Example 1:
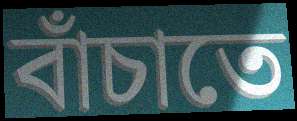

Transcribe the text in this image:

বাঁচাতে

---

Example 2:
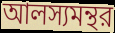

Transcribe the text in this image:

আলস্যমন্থর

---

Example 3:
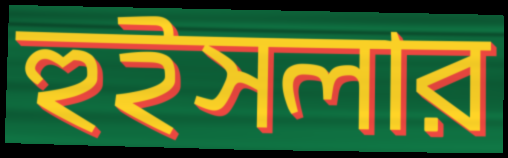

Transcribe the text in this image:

হুইসলার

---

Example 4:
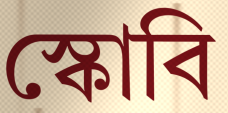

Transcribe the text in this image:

স্কোবি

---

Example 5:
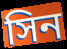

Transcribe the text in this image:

সিন